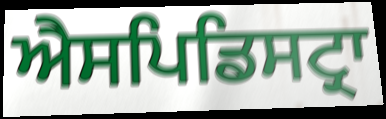
ਐਸਪਿਡਿਸਟ੍ਰਾ